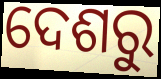
ଦେଶରୁ